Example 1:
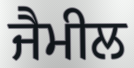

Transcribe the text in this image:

ਜੈਮੀਲ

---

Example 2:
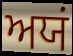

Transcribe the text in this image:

ਅਯਂ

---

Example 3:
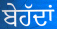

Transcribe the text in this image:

ਬੇਹੱਦਾਂ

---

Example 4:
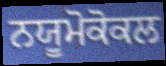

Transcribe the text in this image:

ਨਯੂਮੋਕੋਕਲ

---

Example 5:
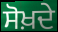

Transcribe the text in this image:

ਸੋਖ਼ਦੇ